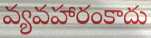
వ్యవహారంకాదు